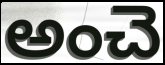
అంచె